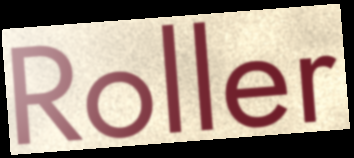
Roller